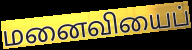
மனைவியைப்